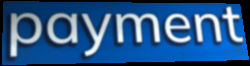
payment